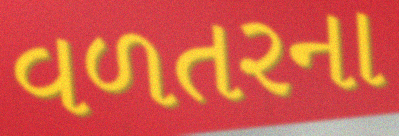
વળતરના